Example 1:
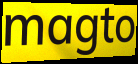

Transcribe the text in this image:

magto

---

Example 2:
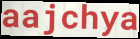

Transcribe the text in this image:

aajchya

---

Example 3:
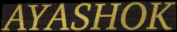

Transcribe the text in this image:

AYASHOK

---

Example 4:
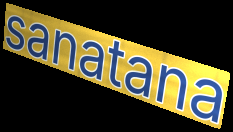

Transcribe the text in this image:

sanatana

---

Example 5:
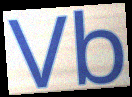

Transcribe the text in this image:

Vb